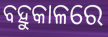
ବହୁକାଳରେ